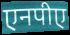
एनपीए